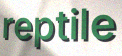
reptile